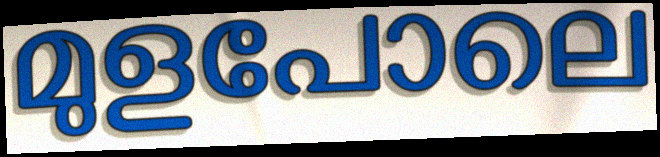
മുളപോലെ